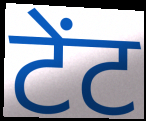
टेंट